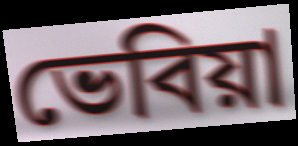
ভেবিয়া